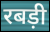
रबड़ी